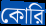
কোরি